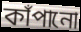
কাঁপানো